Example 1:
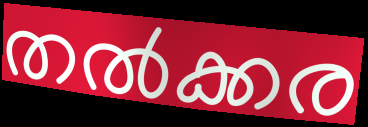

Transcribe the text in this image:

തൽക്കര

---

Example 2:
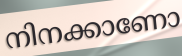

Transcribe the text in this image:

നിനക്കാണോ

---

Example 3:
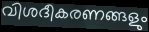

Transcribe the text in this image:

വിശദീകരണങ്ങളും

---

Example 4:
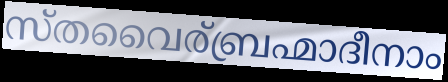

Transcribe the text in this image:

സ്തവൈര്ബ്രഹ്മാദീനാം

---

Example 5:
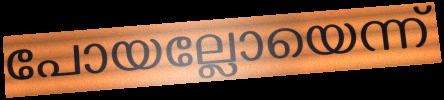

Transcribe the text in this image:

പോയല്ലോയെന്ന്